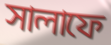
সালাফে